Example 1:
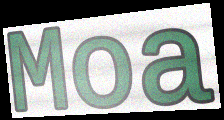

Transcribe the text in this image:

Moa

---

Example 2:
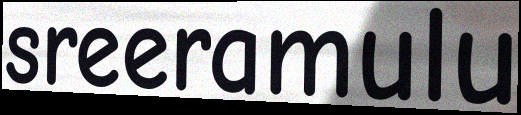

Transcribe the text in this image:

sreeramulu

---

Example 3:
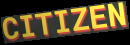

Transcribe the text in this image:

CITIZEN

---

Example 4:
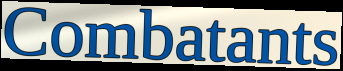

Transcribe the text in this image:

Combatants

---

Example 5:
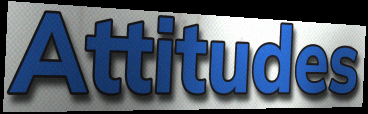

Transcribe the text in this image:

Attitudes